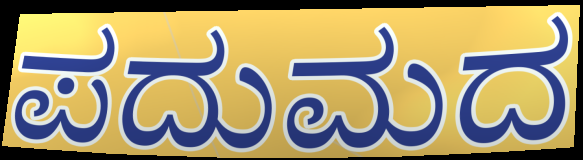
ಪದುಮದ